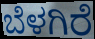
ಬೆಳಗಿರೆ